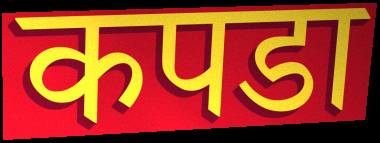
कपडा